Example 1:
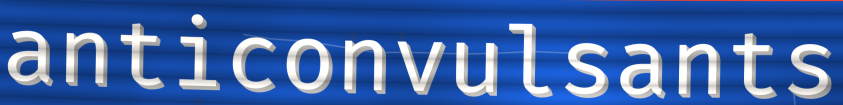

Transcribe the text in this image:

anticonvulsants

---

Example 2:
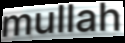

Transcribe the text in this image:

mullah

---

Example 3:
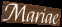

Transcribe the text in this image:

Mariae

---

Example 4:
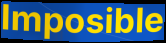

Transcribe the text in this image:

Imposible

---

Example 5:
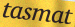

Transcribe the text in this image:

tasmat